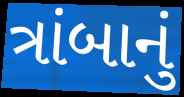
ત્રાંબાનું